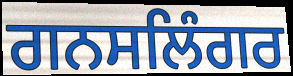
ਗਨਸਲਿੰਗਰ